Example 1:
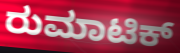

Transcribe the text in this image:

ರುಮಾಟಿಕ್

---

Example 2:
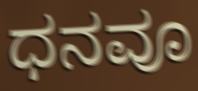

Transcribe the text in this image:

ಧನವೂ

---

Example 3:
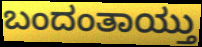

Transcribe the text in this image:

ಬಂದಂತಾಯ್ತು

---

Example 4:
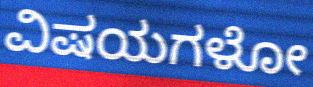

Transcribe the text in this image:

ವಿಷಯಗಳೋ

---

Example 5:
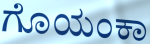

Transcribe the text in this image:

ಗೊಯಂಕಾ